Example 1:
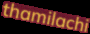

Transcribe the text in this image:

thamilachi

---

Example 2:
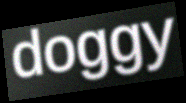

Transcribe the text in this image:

doggy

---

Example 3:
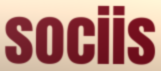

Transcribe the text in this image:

sociis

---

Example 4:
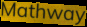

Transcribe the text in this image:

Mathway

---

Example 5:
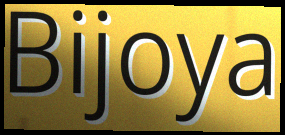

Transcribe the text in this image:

Bijoya